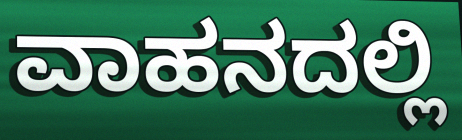
ವಾಹನದಲ್ಲಿ